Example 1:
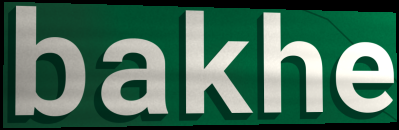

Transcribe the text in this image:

bakhe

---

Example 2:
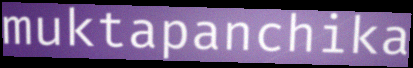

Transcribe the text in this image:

muktapanchika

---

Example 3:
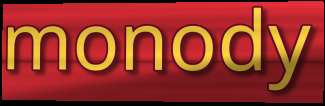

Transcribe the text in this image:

monody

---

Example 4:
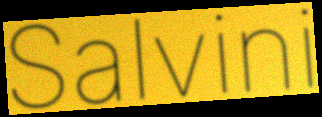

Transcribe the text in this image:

Salvini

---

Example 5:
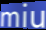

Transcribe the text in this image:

miu